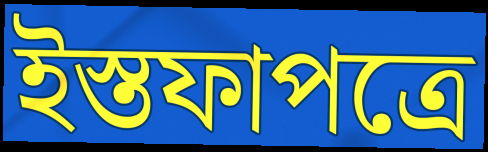
ইস্তফাপত্রে